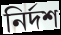
নির্দশ